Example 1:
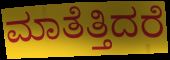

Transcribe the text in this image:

ಮಾತೆತ್ತಿದರೆ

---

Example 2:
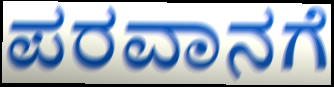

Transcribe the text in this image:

ಪರವಾನಗೆ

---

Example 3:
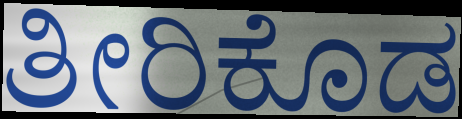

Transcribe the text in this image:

ತೀರಿಕೊಡ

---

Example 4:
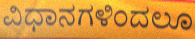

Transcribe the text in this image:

ವಿಧಾನಗಳಿಂದಲೂ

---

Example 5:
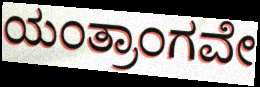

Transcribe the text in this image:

ಯಂತ್ರಾಂಗವೇ